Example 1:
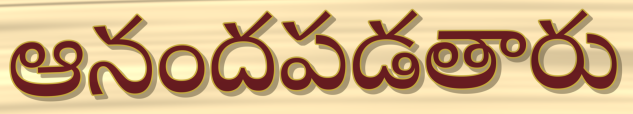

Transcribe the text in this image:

ఆనందపడతారు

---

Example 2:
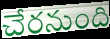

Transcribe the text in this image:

చేరనుంది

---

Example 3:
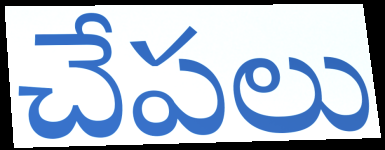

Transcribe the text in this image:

చేపలు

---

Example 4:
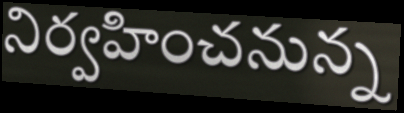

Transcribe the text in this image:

నిర్వహించనున్న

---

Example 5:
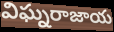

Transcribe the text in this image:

విఘ్నరాజాయ